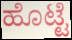
ಹೊಟ್ಟೆ